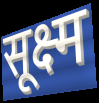
सूक्ष्म